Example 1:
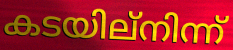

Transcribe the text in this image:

കടയില്നിന്ന്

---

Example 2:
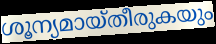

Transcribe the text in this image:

ശൂന്യമായ്തീരുകയും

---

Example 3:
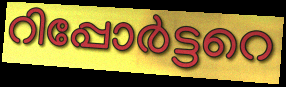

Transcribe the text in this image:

റിപ്പോർട്ടറെ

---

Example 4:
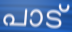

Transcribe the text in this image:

പാട്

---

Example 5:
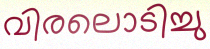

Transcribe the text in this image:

വിരലൊടിച്ചു